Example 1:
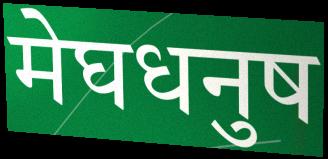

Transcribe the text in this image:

मेघधनुष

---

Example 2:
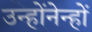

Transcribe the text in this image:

उन्होंनेन्हों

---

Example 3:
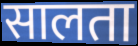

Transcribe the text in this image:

सालता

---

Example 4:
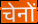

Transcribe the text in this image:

चेनों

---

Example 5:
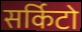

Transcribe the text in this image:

सर्किटो